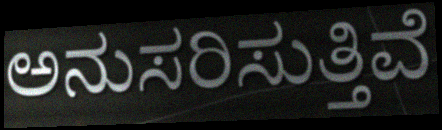
ಅನುಸರಿಸುತ್ತಿವೆ